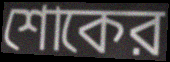
শোকের